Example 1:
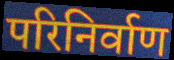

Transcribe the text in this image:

परिनिर्वाण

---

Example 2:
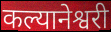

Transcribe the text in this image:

कल्यानेश्वरी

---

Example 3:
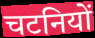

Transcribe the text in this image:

चटनियों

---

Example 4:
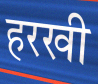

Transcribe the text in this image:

हरखी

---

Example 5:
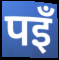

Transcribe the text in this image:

पइँ